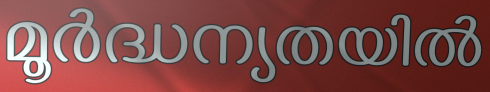
മൂർദ്ധന്യതയിൽ